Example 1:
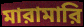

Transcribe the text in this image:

মারামারি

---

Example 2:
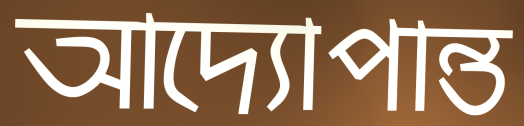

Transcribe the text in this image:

আদ্যোপান্ত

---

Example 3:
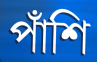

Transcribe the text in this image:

পাঁশি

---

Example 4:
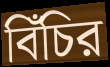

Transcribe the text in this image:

বিঁচির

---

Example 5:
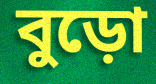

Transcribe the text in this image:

বুড়ো